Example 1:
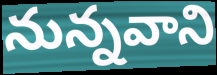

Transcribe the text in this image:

నున్నవాని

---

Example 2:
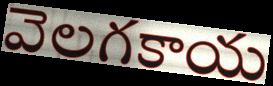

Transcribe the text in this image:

వెలగకాయ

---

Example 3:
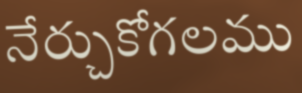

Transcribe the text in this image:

నేర్చుకోగలము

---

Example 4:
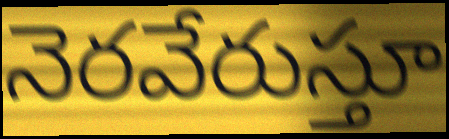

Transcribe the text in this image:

నెరవేరుస్తూ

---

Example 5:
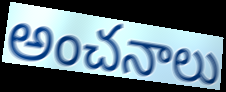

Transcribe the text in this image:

అంచనాలు